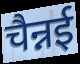
चैन्नई